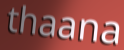
thaana